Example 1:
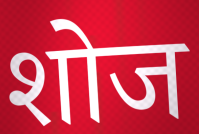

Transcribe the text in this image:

शोज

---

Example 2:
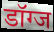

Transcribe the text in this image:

डॉग्ज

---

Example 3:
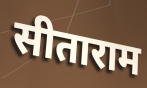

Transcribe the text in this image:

सीताराम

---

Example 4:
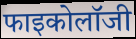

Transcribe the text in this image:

फाइकोलॉजी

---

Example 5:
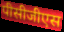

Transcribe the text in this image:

पीसीजीएस